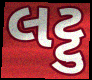
લટ્ટુ